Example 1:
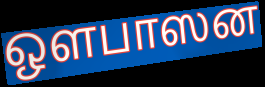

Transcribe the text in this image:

ஒளபாஸன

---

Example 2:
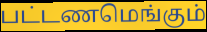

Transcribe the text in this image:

பட்டணமெங்கும்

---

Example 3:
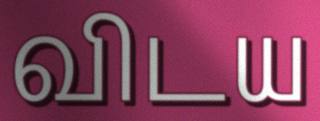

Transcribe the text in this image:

விடய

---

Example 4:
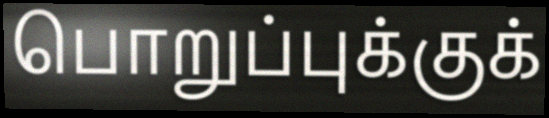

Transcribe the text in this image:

பொறுப்புக்குக்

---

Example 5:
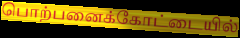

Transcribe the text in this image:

பொற்பனைக்கோட்டையில்